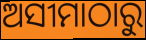
ଅସୀମାଠାରୁ